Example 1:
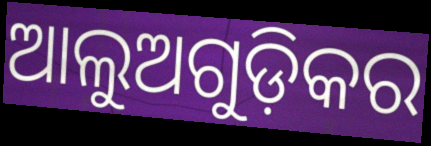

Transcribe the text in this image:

ଆଲୁଅଗୁଡ଼ିକର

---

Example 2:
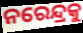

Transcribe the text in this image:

ନରେନ୍ଦ୍ରକୁ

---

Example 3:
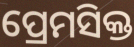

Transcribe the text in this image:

ପ୍ରେମସିକ୍ତ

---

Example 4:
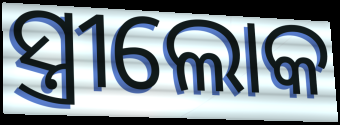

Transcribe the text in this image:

ସ୍ତ୍ରୀଲୋକ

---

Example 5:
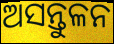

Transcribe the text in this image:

ଅସନ୍ତୁଳନ